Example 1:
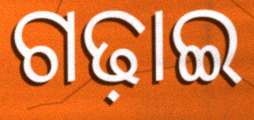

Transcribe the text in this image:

ଗଢ଼ାଇ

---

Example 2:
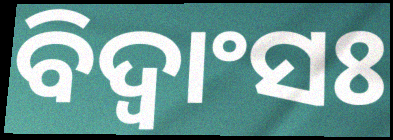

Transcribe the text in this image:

ବିଦ୍ଵାଂସଃ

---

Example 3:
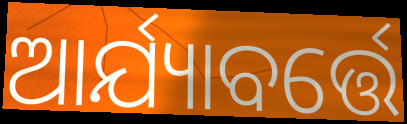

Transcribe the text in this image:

ଆର୍ଯ୍ୟାବର୍ତ୍ତେ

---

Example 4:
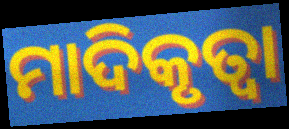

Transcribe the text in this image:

ମାଦିକୃତ୍ୱା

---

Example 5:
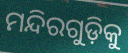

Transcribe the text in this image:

ମନ୍ଦିରଗୁଡ଼ିକୁ